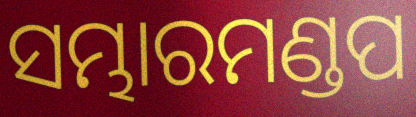
ସମ୍ଭାରମଣ୍ଡପ